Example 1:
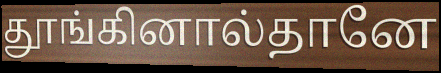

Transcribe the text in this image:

தூங்கினால்தானே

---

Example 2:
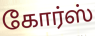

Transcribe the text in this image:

கோர்ஸ்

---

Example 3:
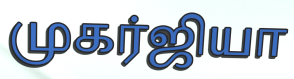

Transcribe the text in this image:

முகர்ஜியா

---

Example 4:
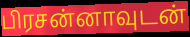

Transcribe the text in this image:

பிரசன்னாவுடன்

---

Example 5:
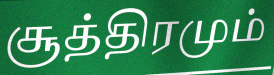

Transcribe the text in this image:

சூத்திரமும்